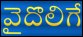
వైదొలిగే